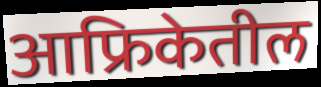
आफ्रिकेतील